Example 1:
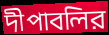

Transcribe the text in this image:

দীপাবলির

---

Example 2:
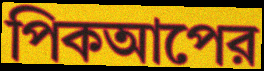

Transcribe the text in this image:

পিকআপের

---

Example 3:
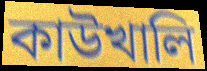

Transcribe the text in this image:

কাউখালি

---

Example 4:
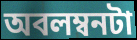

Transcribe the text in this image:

অবলম্বনটা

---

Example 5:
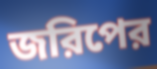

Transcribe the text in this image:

জরিপের